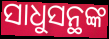
ସାଧୁସନ୍ଥଙ୍କ